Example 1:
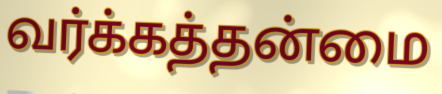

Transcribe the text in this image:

வர்க்கத்தன்மை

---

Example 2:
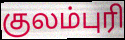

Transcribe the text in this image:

குலம்புரி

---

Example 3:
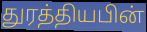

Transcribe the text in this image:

துரத்தியபின்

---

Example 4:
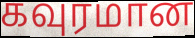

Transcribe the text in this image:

கவுரமான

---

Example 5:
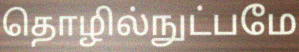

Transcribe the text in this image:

தொழில்நுட்பமே